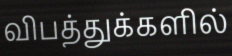
விபத்துக்களில்